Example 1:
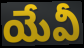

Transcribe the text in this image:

యేవీ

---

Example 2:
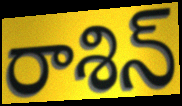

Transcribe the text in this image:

రాశిన్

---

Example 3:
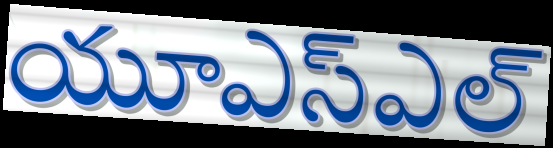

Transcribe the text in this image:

యూఎస్ఎల్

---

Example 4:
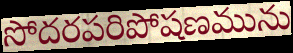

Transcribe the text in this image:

సోదరపరిపోషణమును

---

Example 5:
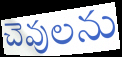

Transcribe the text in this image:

చెవులను